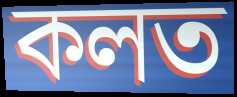
কলত